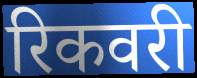
रिकवरी